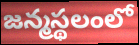
జన్మస్థలంలో